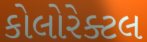
કોલોરેક્ટલ